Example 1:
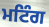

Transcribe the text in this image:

ਮਟਿੰਗ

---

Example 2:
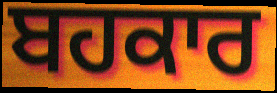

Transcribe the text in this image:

ਬਹਕਾਰ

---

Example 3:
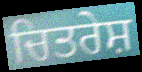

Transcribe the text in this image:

ਚਿਤਰੇਸ਼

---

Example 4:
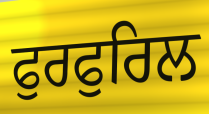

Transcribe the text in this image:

ਫੁਰਫੁਰਿਲ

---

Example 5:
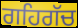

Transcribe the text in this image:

ਗਹਿਗੱਚ